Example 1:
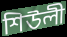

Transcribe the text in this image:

শিউলী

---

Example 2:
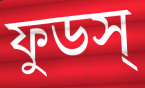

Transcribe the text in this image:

ফুডস্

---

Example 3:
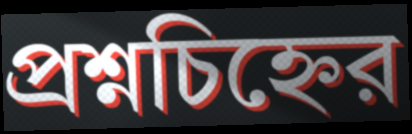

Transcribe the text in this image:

প্রশ্নচিহ্নের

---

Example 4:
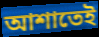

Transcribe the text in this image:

আশাতেই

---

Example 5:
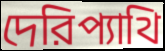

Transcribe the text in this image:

দেরিপ্যাথি